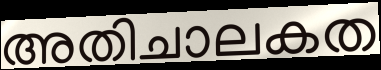
അതിചാലകത